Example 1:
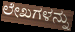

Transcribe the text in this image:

ಲೇಖಗಳನ್ನು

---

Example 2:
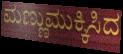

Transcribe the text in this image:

ಮಣ್ಣುಮುಕ್ಕಿಸಿದ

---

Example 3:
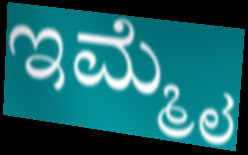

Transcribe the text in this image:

ಇಮ್ಮೈ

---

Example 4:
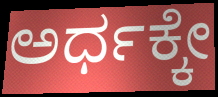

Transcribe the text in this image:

ಅರ್ಧಕ್ಕೇ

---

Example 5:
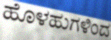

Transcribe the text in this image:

ಹೊಳಹುಗಳಿಂದ